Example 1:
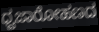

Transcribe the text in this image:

ಧ್ವಜಾರೋಹಣದ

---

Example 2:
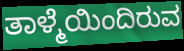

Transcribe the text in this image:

ತಾಳ್ಮೆಯಿಂದಿರುವ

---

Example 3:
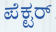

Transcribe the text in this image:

ಪೆಕ್ಟರ್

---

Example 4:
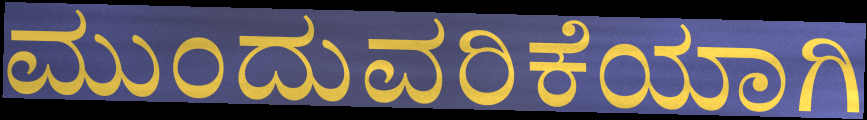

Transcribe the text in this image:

ಮುಂದುವರಿಕೆಯಾಗಿ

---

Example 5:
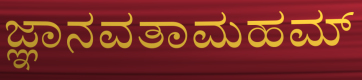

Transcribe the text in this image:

ಜ್ಞಾನವತಾಮಹಮ್